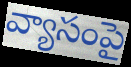
వ్యాసంపై